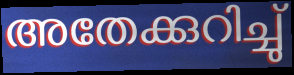
അതേക്കുറിച്ചു്